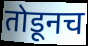
तोडूनच